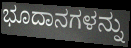
ಭೂದಾನಗಳನ್ನು